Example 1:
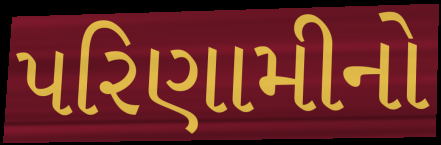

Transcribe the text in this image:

પરિણામીનો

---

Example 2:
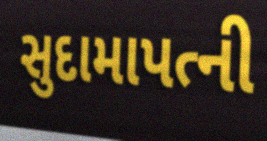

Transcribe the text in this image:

સુદામાપત્ની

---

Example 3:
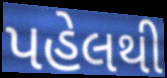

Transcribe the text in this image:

પહેલથી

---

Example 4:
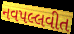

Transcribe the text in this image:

નવપલ્લવીત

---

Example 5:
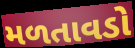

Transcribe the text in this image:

મળતાવડો